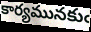
కార్యమునకుఁ